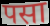
पसा